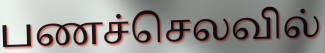
பணச்செலவில்